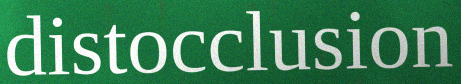
distocclusion